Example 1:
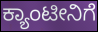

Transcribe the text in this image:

ಕ್ಯಾಂಟೀನಿಗೆ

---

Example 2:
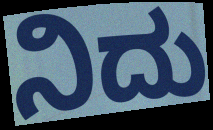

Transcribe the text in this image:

ನಿದು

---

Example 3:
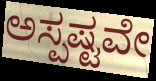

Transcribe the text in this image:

ಅಸ್ಪಷ್ಟವೇ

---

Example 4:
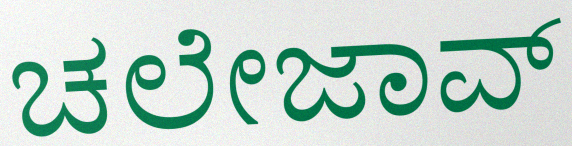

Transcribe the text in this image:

ಚಲೇಜಾವ್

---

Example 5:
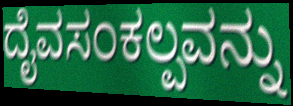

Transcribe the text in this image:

ದೈವಸಂಕಲ್ಪವನ್ನು